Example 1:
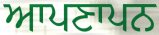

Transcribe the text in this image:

ਆਪਣਾਪਨ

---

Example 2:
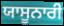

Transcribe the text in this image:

ਯਾਸੂਨਾਰੀ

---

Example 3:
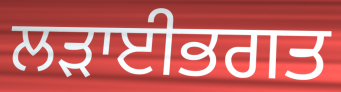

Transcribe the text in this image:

ਲੜਾਈਭਗਤ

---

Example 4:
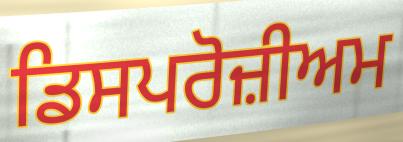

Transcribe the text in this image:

ਡਿਸਪਰੋਜ਼ੀਅਮ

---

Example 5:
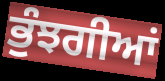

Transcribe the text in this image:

ਭੁੰਝਗੀਆਂ